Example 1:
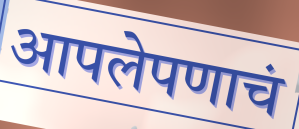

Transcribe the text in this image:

आपलेपणाचं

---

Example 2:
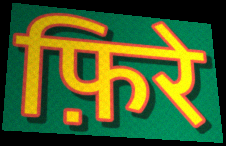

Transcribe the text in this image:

फ़िरे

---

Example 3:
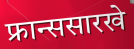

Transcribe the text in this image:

फ्रान्ससारखे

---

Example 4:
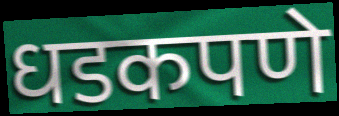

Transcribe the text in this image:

धडकपणे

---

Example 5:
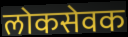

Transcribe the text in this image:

लोकसेवक